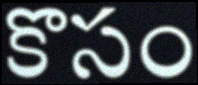
కొసం